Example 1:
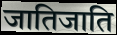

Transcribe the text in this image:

जातिजाति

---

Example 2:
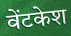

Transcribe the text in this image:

वेंटकेश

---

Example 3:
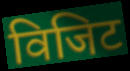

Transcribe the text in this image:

विजिट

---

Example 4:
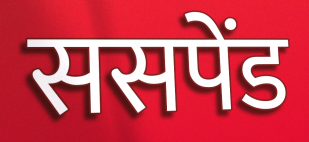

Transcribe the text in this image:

ससपेंड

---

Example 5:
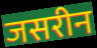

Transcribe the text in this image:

जसरीन